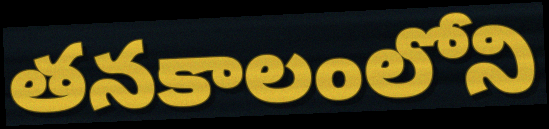
తనకాలంలోని